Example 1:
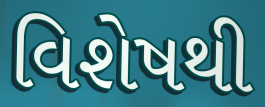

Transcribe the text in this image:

વિશેષથી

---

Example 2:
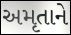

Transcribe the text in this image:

અમૃતાને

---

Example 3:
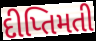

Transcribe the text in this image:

દીપ્તિમતી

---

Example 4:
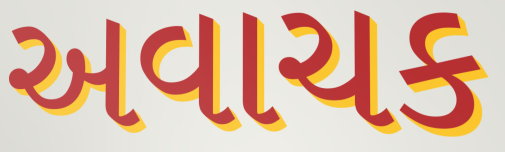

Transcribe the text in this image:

અવાચક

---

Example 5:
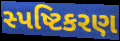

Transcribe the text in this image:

સ્પષ્ટિકરણ